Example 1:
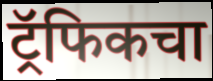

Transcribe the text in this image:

ट्रॅफिकचा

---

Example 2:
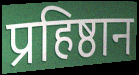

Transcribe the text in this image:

प्रहिष्ठान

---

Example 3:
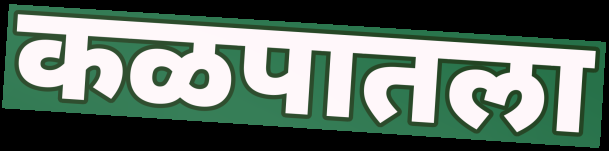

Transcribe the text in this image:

कळपातला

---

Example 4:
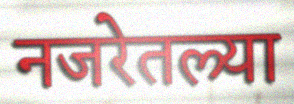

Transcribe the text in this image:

नजरेतल्या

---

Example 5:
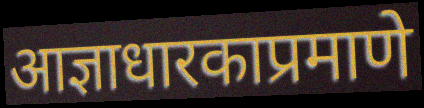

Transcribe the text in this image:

आज्ञाधारकाप्रमाणे